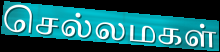
செல்லமகள்